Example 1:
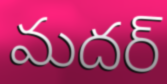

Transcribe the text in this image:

మదర్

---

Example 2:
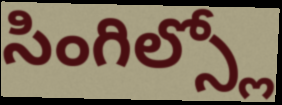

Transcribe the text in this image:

సింగిల్స్లో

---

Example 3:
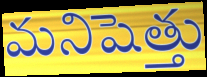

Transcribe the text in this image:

మనిషెత్తు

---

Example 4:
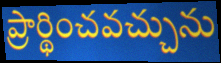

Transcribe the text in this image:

ప్రార్థించవచ్చును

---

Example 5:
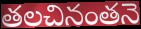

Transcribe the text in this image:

తలచినంతనె